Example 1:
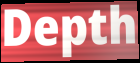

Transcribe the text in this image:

Depth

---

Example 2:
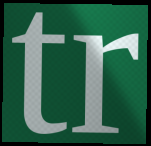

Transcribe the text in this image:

tr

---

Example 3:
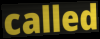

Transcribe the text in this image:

called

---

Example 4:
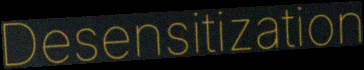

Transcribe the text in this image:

Desensitization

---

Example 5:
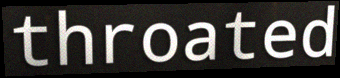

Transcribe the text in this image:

throated